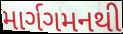
માર્ગગમનથી